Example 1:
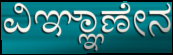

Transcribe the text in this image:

ವಿಞ್ಞಾಣೇನ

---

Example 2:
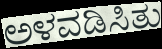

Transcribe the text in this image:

ಅಳವಡಿಸಿತು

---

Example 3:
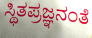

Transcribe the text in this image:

ಸ್ಥಿತಪ್ರಜ್ಞನಂತೆ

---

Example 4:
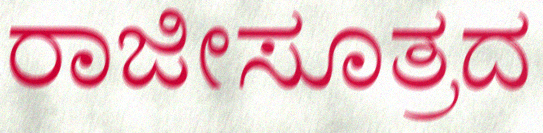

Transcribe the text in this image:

ರಾಜೀಸೂತ್ರದ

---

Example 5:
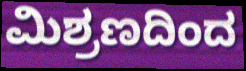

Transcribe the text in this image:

ಮಿಶ್ರಣದಿಂದ